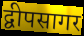
द्वीपसागर